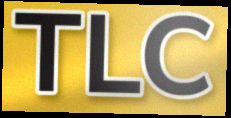
TLC